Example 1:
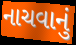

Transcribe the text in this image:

નાચવાનું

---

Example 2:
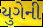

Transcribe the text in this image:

યુગેની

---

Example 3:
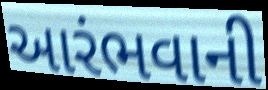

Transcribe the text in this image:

આરંભવાની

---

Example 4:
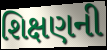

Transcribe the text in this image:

શિક્ષણની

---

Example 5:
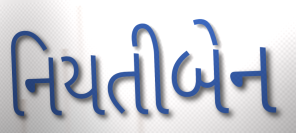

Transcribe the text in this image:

નિયતીબેન